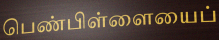
பெண்பிள்ளையைப்